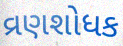
વ્રણશોધક